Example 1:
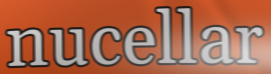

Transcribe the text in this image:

nucellar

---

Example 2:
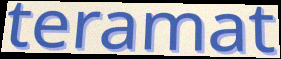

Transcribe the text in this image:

teramat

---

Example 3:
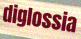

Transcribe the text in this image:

diglossia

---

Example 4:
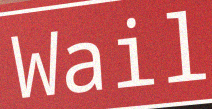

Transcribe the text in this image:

Wail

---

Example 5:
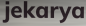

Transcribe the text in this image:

jekarya